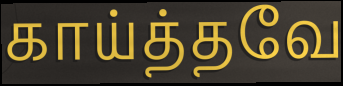
காய்த்தவே